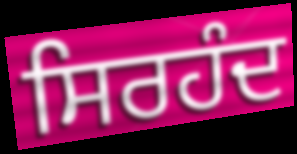
ਸਿਰਹੰਦ